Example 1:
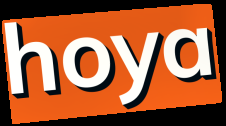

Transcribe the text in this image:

hoya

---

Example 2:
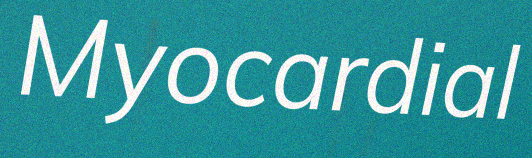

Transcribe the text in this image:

Myocardial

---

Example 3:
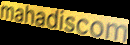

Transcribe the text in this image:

mahadiscom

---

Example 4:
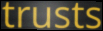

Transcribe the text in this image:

trusts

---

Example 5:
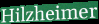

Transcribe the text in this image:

Hilzheimer